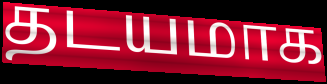
தடயமாக